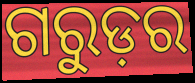
ଗରୁଡ଼ର